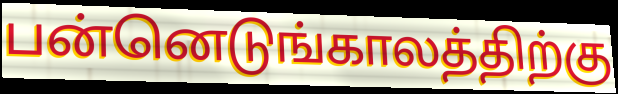
பன்னெடுங்காலத்திற்கு